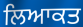
ਲਿਆਕਤ